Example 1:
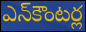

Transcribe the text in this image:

ఎన్‌కౌంటర్ల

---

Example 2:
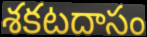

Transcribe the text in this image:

శకటదాసం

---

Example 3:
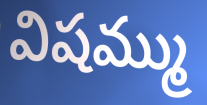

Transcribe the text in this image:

విషమ్ము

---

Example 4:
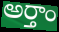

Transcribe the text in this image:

అర్తాం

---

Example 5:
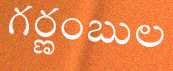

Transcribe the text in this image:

గర్ణంబుల